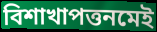
বিশাখাপত্তনমেই